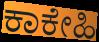
ಕಾಕೇಹಿ